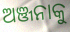
ଅଞ୍ଜନାକୁ